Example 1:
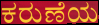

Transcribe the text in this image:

ಕರುಣೆಯ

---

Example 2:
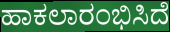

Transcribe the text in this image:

ಹಾಕಲಾರಂಭಿಸಿದೆ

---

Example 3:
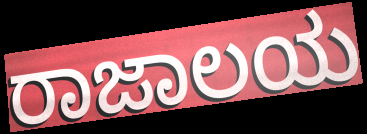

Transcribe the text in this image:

ರಾಜಾಲಯ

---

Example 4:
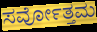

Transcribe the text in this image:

ಸರ್ವೋತ್ತಮ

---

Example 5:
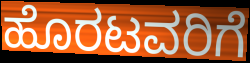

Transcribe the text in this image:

ಹೊರಟವರಿಗೆ